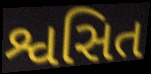
શ્વસિત